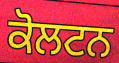
ਕੋਲਟਨ